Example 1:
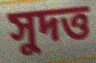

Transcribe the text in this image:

সুদত্ত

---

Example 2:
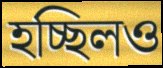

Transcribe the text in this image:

হচ্ছিলও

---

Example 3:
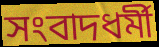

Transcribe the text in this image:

সংবাদধর্মী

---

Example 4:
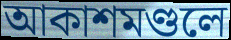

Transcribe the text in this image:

আকাশমণ্ডলে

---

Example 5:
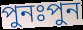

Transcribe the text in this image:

পুনঃপুন